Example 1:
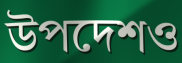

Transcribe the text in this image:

উপদেশও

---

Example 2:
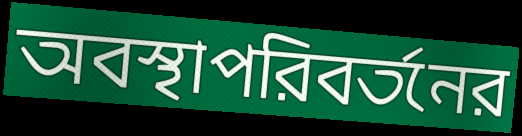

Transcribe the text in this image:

অবস্থাপরিবর্তনের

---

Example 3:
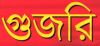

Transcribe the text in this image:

গুজরি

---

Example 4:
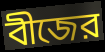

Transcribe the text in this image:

বীজের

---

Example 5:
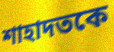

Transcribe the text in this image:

শাহাদতকে